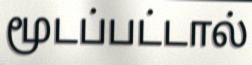
மூடப்பட்டால்